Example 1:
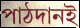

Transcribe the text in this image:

পাঠদানই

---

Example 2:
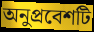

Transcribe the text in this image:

অনুপ্রবেশটি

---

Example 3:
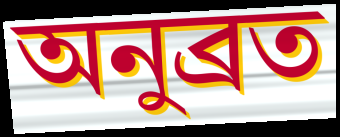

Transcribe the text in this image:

অনুব্রত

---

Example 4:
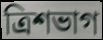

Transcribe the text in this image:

ত্রিশভাগ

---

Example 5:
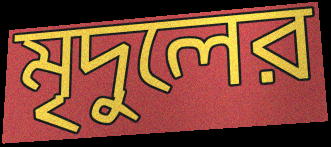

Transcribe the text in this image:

মৃদুলের